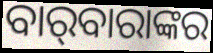
ବାର୍‌ବାରାଙ୍କର